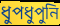
ধুপধুপুনি